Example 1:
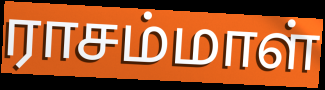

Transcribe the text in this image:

ராசம்மாள்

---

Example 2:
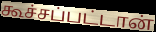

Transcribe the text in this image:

கூச்சப்பட்டான்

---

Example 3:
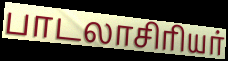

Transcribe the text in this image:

பாடலாசிரியர்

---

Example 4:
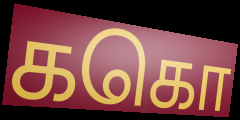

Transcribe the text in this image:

ககொ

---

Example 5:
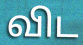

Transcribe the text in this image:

விட